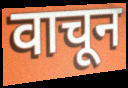
वाचून